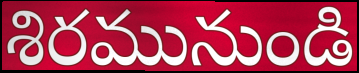
శిరమునుండి